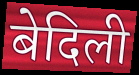
बेदिली